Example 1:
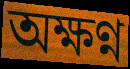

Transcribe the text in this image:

অক্ষণ্ন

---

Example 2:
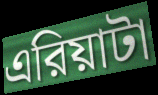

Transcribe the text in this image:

এরিয়াটা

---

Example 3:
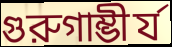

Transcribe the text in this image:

গুরুগাম্ভীর্য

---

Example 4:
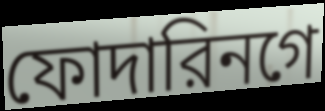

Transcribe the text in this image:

ফোদারিনগে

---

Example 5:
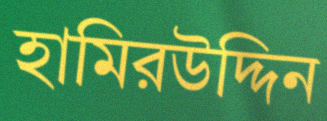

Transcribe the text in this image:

হামিরউদ্দিন